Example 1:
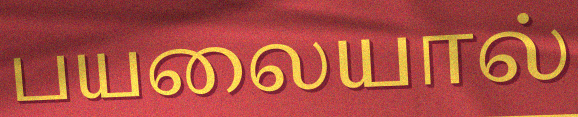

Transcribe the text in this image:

பயலையால்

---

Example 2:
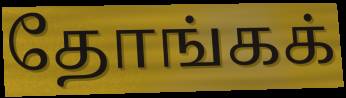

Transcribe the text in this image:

தோங்கக்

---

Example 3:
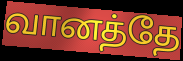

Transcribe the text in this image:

வானத்தே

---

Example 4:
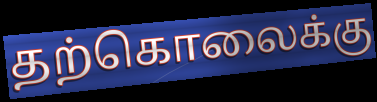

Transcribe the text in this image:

தற்கொலைக்கு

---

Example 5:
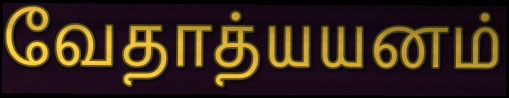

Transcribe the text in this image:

வேதாத்யயனம்